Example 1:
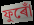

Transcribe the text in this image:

ফুৰোঁ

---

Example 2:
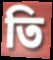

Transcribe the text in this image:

তি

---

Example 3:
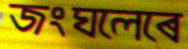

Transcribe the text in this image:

জংঘলেৰে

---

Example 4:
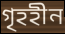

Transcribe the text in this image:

গৃহহীন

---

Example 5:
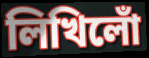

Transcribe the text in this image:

লিখিলোঁ